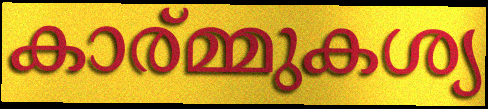
കാര്മ്മുകശ്യ